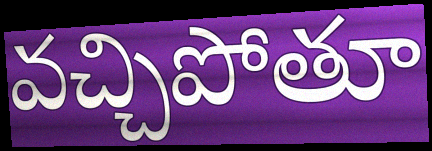
వచ్చిపోతూ